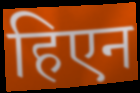
हिएन